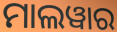
ମାଲୱାର